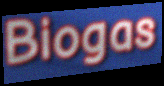
Biogas